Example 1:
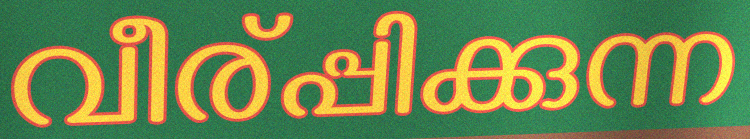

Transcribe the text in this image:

വീര്പ്പിക്കുന്ന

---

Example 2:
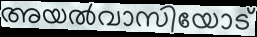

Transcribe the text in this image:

അയൽവാസിയോട്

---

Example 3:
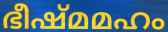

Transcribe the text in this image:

ഭീഷ്മമഹം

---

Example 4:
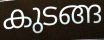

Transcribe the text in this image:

കുടങ്ങ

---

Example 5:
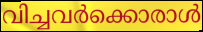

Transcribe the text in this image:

വിച്ചവർക്കൊരാൾ